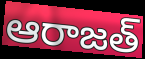
ఆరాజత్